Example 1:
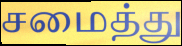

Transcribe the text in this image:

சமைத்து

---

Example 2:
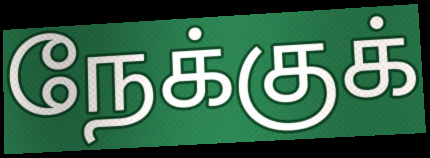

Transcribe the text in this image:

நேக்குக்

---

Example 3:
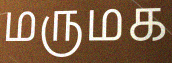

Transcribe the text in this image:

மருமக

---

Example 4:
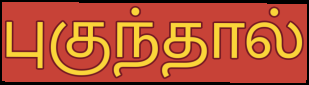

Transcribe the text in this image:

புகுந்தால்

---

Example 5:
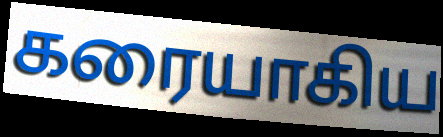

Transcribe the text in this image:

கரையாகிய